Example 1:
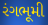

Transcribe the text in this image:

રંગભૂમી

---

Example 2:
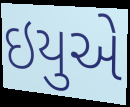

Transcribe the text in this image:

ઇયુએ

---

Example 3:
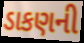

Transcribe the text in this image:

ડાકણની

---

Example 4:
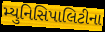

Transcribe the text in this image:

મ્યુનિસિપાલિટીના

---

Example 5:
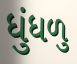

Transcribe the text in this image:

ધુંધળુ